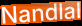
Nandlal